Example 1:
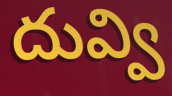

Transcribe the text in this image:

దువ్వి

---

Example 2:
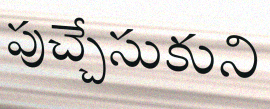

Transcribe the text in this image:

పుచ్చేసుకుని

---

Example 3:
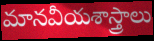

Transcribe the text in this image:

మానవీయశాస్త్రాలు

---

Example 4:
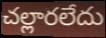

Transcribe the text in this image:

చల్లారలేదు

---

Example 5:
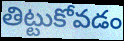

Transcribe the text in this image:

తిట్టుకోవడం